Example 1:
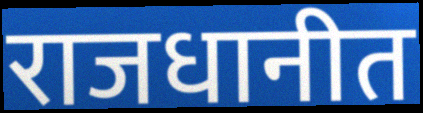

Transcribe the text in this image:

राजधानीत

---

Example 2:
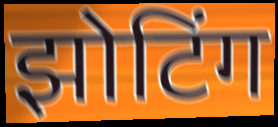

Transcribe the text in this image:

झोटिंग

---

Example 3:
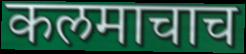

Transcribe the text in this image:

कलमाचाच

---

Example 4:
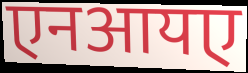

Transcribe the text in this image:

एनआयए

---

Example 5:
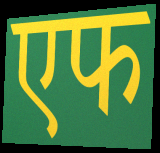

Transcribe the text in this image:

एफ